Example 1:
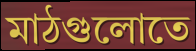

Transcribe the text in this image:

মাঠগুলোতে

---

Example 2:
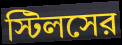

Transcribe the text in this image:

স্টিলসের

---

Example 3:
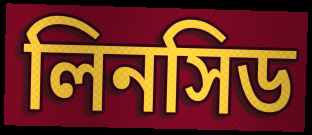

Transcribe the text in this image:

লিনসিড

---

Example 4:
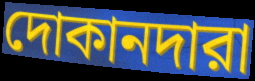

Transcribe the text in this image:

দোকানদারা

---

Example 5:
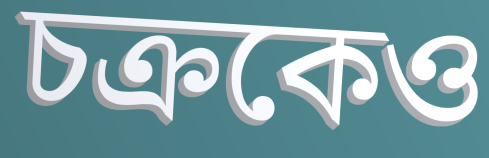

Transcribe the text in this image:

চক্রকেও